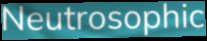
Neutrosophic